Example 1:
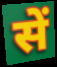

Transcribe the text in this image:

सें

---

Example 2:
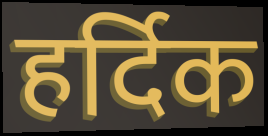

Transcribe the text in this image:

हर्दिक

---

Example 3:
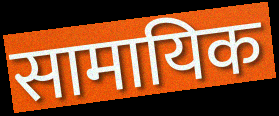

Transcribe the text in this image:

सामायिक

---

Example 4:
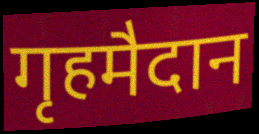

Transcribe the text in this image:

गृहमैदान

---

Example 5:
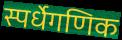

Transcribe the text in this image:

स्पर्धेगणिक